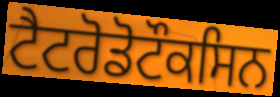
ਟੈਟਰੋਡੋਟੌਕਸਿਨ